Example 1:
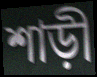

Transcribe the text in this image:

শাড়ী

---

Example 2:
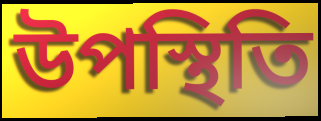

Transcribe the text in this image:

উপস্থিতি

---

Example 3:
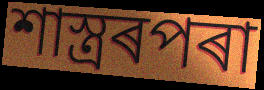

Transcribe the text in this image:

শাস্ত্ৰৰপৰা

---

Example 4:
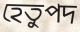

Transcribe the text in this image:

হেতুপদ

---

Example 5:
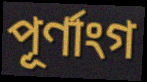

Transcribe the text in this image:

পূৰ্ণাংগ